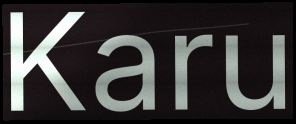
Karu